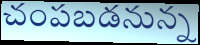
చంపబడనున్న